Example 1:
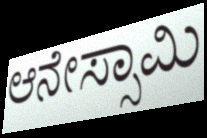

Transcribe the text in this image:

ಆನೇಸ್ಸಾಮಿ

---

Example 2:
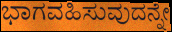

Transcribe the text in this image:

ಭಾಗವಹಿಸುವುದನ್ನೇ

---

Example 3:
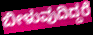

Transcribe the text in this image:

ಬೀಳುವುದಿದ್ದರೆ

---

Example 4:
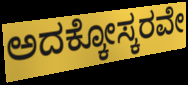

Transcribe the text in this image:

ಅದಕ್ಕೋಸ್ಕರವೇ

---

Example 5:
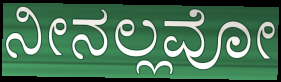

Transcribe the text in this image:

ನೀನಲ್ಲವೋ